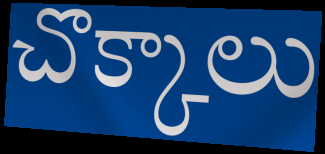
చొక్కాలు